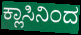
ಕ್ಲಾಸಿನಿಂದ